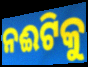
ନଈଟିକୁ